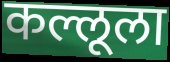
कल्लूला